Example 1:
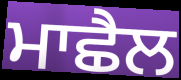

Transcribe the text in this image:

ਮਾਛੈਲ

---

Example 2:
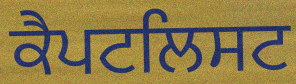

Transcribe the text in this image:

ਕੈਪਟਲਿਸਟ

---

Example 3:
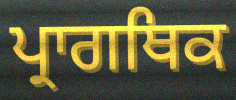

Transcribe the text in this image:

ਪ੍ਰਾਗਥਿਕ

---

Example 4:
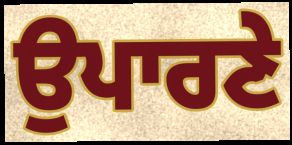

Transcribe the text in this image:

ਉਪਾਰਣੇ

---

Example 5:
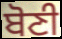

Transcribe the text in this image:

ਬੋਣੀ